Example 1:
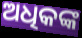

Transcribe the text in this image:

ଅଧିକଙ୍କ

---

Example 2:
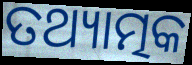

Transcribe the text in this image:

ତଥ୍ୟାତ୍ମକ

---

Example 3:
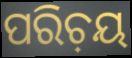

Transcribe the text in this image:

ପରିଚ଼ୟ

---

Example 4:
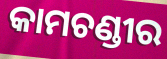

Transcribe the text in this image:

କାମଚଣ୍ଡୀର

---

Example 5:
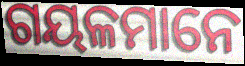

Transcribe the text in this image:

ଗୟଳମାନେ